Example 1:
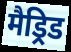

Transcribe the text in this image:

मैड्रिड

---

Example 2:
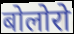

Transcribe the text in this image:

बोलोरो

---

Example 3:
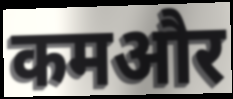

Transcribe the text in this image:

कमऔर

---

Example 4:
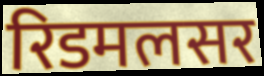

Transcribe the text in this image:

रिडमलसर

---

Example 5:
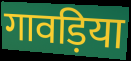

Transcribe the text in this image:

गावड़िया